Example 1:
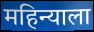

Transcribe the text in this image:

महिन्याला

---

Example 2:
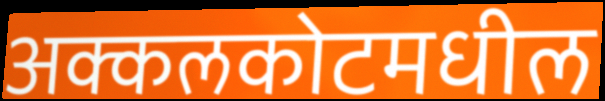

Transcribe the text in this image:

अक्कलकोटमधील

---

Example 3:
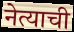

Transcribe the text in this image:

नेत्याची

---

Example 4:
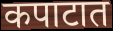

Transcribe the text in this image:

कपाटात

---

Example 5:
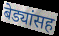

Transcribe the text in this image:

बेड्यांसह